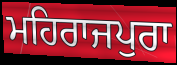
ਮਹਿਰਾਜਪੁਰਾ